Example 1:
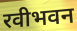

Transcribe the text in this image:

रवीभवन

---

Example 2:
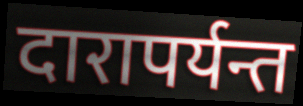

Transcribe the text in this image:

दारापर्यन्त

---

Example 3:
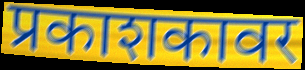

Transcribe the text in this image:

प्रकाशकावर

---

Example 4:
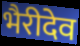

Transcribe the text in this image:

भैरीदेव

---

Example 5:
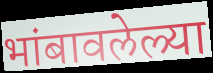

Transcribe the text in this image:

भांबावलेल्या